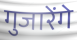
गुजारेंगे